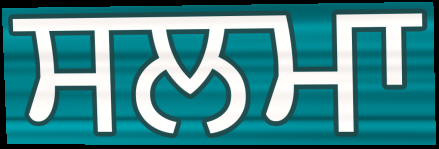
ਸਲਮਾ